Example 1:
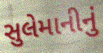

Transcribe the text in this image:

સુલેમાનીનું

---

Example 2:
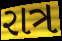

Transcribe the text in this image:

રાત્ર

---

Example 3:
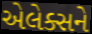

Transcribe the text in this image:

એલેક્સને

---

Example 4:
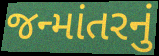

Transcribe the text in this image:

જન્માંતરનું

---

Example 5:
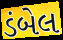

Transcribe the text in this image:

ડંબેલ